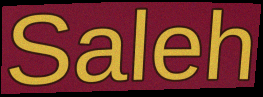
Saleh